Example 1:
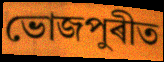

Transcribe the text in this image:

ভোজপুৰীত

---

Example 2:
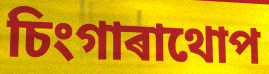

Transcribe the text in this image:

চিংগাৰাথোপ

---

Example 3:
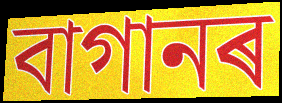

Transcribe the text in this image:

বাগানৰ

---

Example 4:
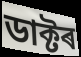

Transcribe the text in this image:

ডাক্টৰ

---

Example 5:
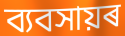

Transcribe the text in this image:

ব্যবসায়ৰ